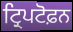
ਟ੍ਰਿਪਟੋਫ਼ਨ